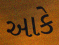
આકે